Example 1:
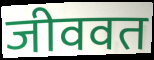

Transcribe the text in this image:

जीववत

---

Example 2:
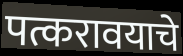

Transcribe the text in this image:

पत्करावयाचे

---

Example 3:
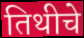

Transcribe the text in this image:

तिथीचे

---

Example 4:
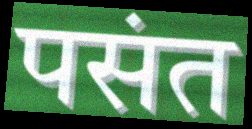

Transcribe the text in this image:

पसंत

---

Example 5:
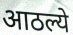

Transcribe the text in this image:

आठल्ये